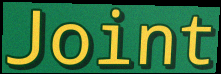
Joint